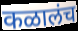
कळालंच